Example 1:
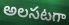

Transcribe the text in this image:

అలసటగా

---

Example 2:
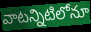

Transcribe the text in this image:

వాటన్నిటిలోనూ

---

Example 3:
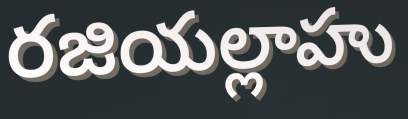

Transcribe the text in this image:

రజియల్లాహు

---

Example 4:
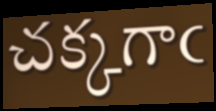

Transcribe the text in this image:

చక్కగాఁ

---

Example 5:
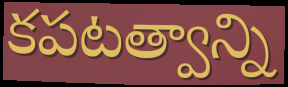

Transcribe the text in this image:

కపటత్వాన్ని